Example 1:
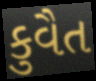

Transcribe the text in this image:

કુવૈત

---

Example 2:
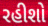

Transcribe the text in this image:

રહીશો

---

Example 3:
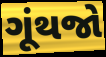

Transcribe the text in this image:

ગૂંથજો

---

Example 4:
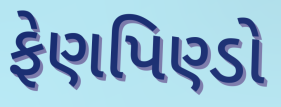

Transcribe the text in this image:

ફેણપિણ્ડો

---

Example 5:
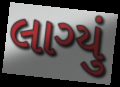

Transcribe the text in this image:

લાગ્યું